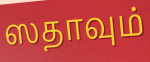
ஸதாவும்